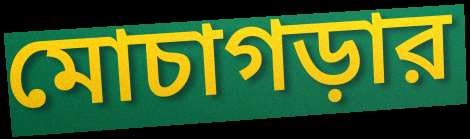
মোচাগড়ার